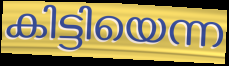
കിട്ടിയെന്ന